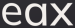
eax